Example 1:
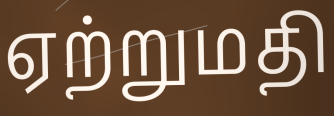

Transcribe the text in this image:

ஏற்றுமதி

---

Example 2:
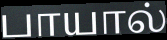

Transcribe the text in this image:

பாயால்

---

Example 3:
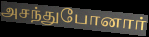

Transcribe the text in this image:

அசந்துபோனார்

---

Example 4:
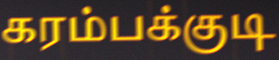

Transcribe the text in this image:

கரம்பக்குடி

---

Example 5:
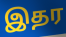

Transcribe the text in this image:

இதர